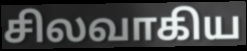
சிலவாகிய